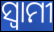
ସ୍ବାମୀ